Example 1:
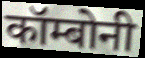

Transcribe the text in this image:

कॉम्बोनी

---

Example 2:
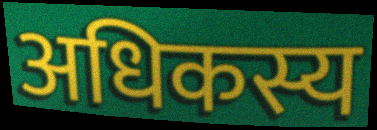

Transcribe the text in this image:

अधिकस्य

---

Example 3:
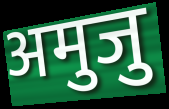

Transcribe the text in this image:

अमुजु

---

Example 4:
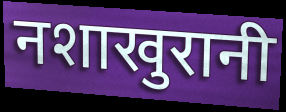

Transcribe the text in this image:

नशाखुरानी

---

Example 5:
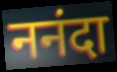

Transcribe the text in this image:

ननंदा